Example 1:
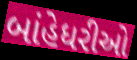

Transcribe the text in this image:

બાંહેધરીઓ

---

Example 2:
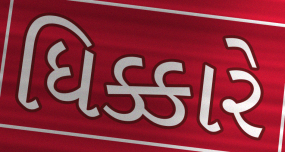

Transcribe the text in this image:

ધિક્કારે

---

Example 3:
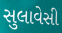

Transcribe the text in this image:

સુલાવેસી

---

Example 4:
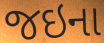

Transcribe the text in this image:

જઇના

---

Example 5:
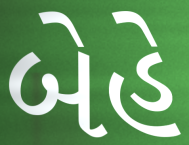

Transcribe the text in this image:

બેહે